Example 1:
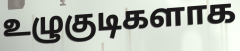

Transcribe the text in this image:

உழுகுடிகளாக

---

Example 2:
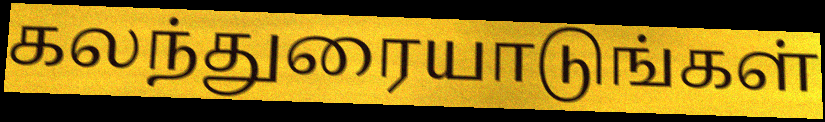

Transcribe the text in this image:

கலந்துரையாடுங்கள்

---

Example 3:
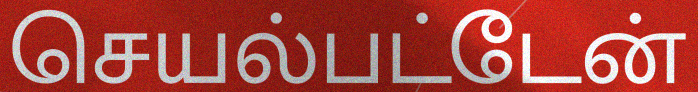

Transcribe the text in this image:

செயல்பட்டேன்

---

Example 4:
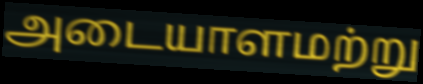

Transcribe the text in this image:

அடையாளமற்று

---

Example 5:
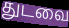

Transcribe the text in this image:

துடவை